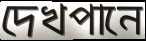
দেখপানে